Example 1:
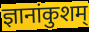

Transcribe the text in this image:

ज्ञानांकुशम्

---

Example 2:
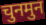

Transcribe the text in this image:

चुनमुन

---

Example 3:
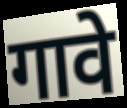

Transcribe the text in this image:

गावे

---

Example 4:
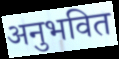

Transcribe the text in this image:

अनुभवित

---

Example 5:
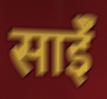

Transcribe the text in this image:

साईॅ